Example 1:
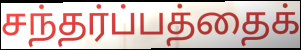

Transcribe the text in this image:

சந்தர்ப்பத்தைக்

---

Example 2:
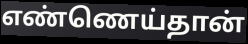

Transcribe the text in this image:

எண்ணெய்தான்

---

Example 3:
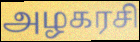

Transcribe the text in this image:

அழகரசி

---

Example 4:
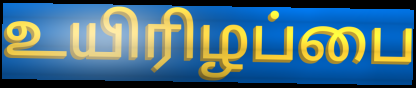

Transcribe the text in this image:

உயிரிழப்பை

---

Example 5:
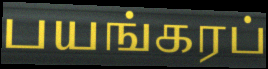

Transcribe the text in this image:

பயங்கரப்